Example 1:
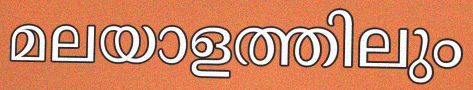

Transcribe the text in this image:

മലയാളത്തിലും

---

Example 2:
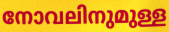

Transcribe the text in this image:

നോവലിനുമുള്ള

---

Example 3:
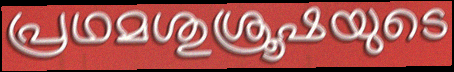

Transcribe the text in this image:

പ്രഥമശുശ്രൂഷയുടെ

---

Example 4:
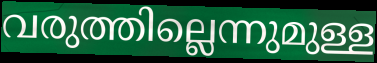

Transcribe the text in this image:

വരുത്തില്ലെന്നുമുള്ള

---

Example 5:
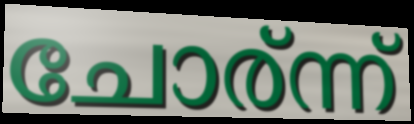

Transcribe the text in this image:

ചോര്ന്ന്